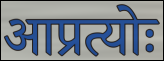
आप्रत्योः